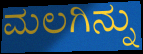
ಮಲಗಿನ್ನು